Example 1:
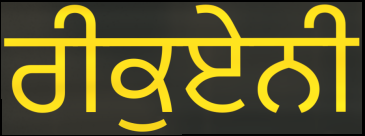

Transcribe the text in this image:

ਰੀਕੁਏਨੀ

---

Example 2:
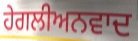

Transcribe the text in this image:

ਹੇਗਲੀਅਨਵਾਦ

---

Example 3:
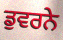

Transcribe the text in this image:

ਡੁਵਰਨੇ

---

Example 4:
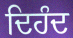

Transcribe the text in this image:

ਦਿਹੰਦ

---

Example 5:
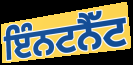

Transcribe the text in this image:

ਇੰਨਟਨੈੱਟ